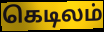
கெடிலம்